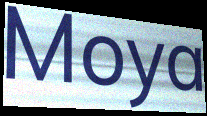
Moya